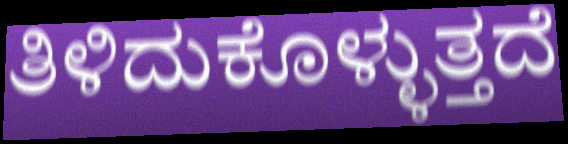
ತಿಳಿದುಕೊಳ್ಳುತ್ತದೆ